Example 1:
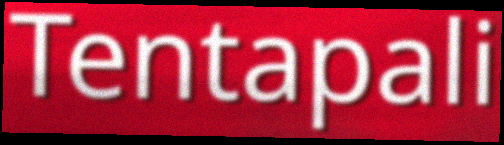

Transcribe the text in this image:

Tentapali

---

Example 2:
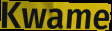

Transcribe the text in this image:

Kwame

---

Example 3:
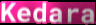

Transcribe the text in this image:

Kedara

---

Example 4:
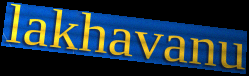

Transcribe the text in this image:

lakhavanu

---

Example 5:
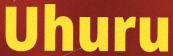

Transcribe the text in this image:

Uhuru